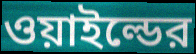
ওয়াইল্ডের